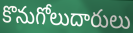
కొనుగోలుదారులు